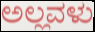
ಅಲ್ಲವಳು